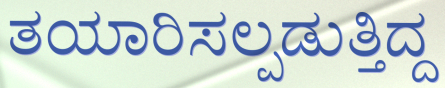
ತಯಾರಿಸಲ್ಪಡುತ್ತಿದ್ದ